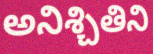
అనిశ్చితిని